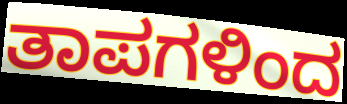
ತಾಪಗಳಿಂದ